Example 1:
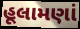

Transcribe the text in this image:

હૂલામણાં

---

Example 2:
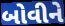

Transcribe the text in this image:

બોવીને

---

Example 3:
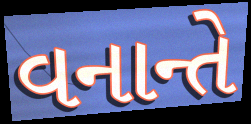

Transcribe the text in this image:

વનાન્તે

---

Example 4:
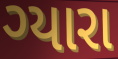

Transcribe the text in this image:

ગ્યારા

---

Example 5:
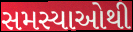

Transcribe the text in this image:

સમસ્યાઓથી